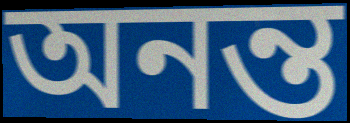
অনন্ত